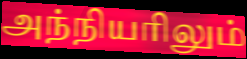
அந்நியரிலும்